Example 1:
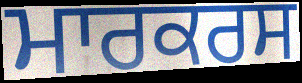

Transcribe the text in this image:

ਮਾਰਕਰਸ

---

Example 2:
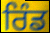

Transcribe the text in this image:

ਰਿੰਡ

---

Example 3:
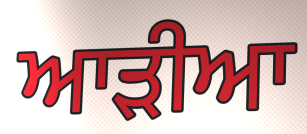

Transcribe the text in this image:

ਆੜੀਆ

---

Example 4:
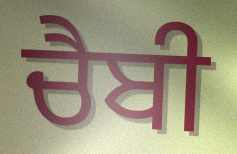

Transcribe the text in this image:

ਚੈਬੀ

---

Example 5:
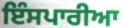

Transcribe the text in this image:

ਇੰਸਪਾਰੀਆ